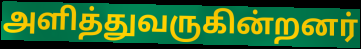
அளித்துவருகின்றனர்